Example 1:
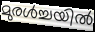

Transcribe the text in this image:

മുരൾച്ചയിൽ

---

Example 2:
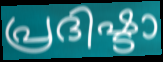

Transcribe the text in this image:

പ്രദിഷ്ടാ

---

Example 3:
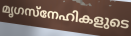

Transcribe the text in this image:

മൃഗസ്നേഹികളുടെ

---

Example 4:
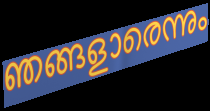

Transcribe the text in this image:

ഞങ്ങളാരെന്നും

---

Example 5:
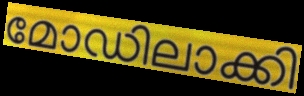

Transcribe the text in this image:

മോഡിലാക്കി